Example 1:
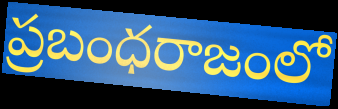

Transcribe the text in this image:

ప్రబంధరాజంలో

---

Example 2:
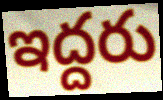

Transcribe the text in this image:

ఇద్దరు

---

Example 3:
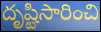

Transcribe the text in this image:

దృష్టిసారించి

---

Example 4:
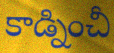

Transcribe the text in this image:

కాడ్నించీ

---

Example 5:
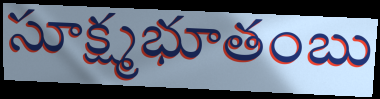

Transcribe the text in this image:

సూక్ష్మభూతంబు